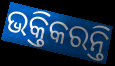
ଭକ୍ତିକରନ୍ତି